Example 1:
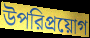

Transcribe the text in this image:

উপরিপ্রয়োগ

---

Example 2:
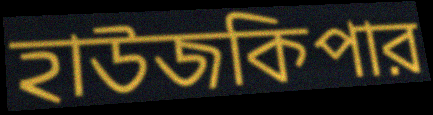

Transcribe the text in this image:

হাউজকিপার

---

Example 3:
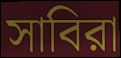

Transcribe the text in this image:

সাবিরা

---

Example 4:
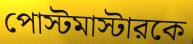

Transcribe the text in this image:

পোস্টমাস্টারকে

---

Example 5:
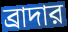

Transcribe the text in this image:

ব্রাদার